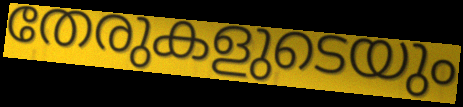
തേരുകളുടെയും